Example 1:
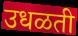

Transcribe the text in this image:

उधळती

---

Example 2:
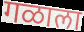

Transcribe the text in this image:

गळाला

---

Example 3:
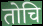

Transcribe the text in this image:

तोचि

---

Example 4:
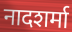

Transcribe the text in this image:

नादशर्मा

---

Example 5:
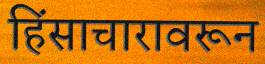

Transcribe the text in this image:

हिंसाचारावरून